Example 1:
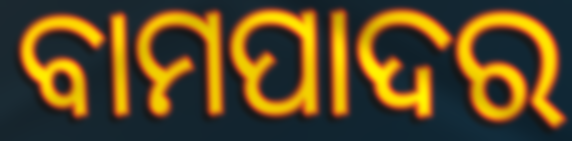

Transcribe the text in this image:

ବାମପାଦର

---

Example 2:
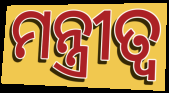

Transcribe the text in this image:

ମନ୍ତ୍ରୀତ୍ୱ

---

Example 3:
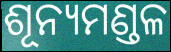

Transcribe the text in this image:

ଶୂନ୍ୟମଣ୍ଡଳ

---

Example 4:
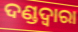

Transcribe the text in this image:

ଦଣ୍ଡଦ୍ବାରା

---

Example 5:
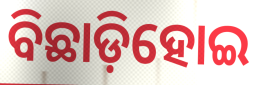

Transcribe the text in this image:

ବିଛାଡ଼ିହୋଇ